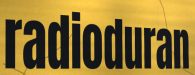
radioduran